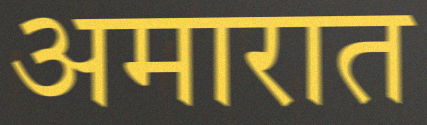
अमारात